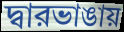
দ্বারভাঙায়